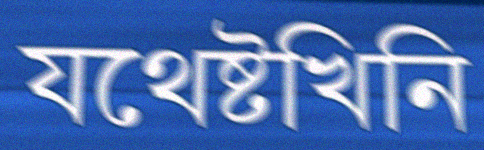
যথেষ্টখিনি